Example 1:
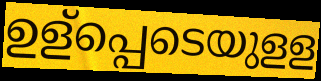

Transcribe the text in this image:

ഉള്പ്പെടെയുളള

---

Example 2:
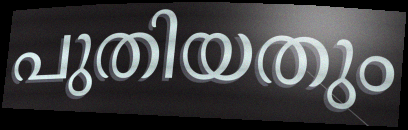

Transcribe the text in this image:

പുതിയതും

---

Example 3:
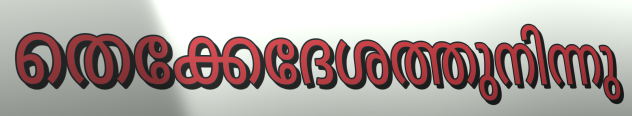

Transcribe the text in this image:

തെക്കേദേശത്തുനിന്നു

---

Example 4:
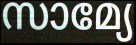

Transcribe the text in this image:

സാമ്യേ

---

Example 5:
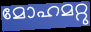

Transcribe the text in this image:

മോഹമറ്റു